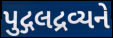
પુદ્ગલદ્રવ્યને